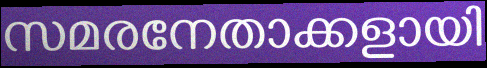
സമരനേതാക്കളായി